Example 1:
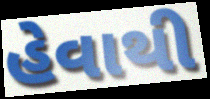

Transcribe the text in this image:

હેવાથી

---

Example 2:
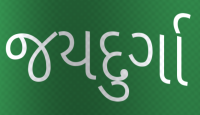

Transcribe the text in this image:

જયદુર્ગા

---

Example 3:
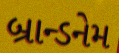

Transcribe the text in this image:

બ્રાન્ડનેમ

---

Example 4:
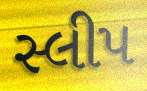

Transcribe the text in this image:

સ્લીપ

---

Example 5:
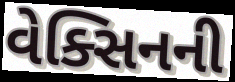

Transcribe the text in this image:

વેક્સિનની